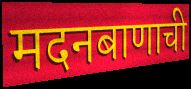
मदनबाणाची